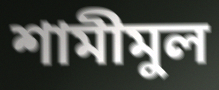
শামীমুল